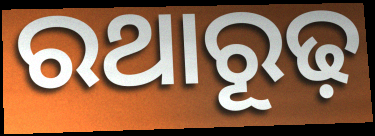
ରଥାରୂଢ଼